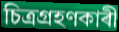
চিত্ৰগ্ৰহণকাৰী